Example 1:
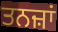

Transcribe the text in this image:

ਤਨਜ਼ਾਂ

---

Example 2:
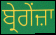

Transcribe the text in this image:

ਬ੍ਰੇਗੇਂਜ਼ਾ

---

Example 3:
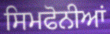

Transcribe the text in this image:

ਸਿਮਫੋਨੀਆਂ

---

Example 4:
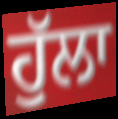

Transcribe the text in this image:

ਹੁੱਲਾ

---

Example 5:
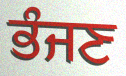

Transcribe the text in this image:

ਭੰਜਣ